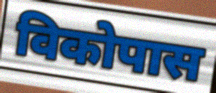
विकोपास